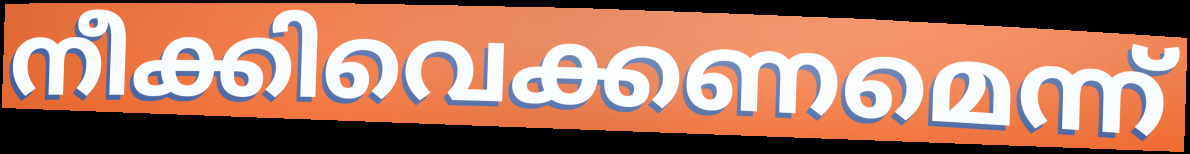
നീക്കിവെക്കണമെന്ന്